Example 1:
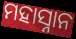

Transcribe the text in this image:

ମହାସ୍ନାନ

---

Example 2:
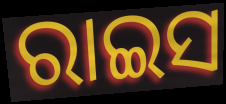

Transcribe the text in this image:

ରାଇସ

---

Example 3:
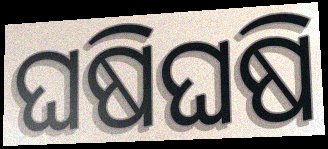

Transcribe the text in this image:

ଘଷିଘଷି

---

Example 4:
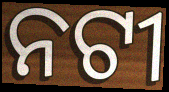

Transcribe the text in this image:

ନଟୀ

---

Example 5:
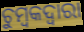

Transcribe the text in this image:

ଚୁମ୍ବକଦ୍ବାରା